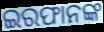
ଇରଫାନଙ୍କ